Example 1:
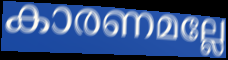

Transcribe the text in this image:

കാരണമല്ലേ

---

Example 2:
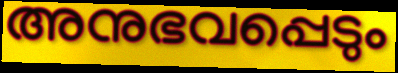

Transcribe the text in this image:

അനുഭവപ്പെടും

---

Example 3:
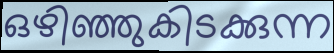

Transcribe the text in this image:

ഒഴിഞ്ഞുകിടക്കുന്ന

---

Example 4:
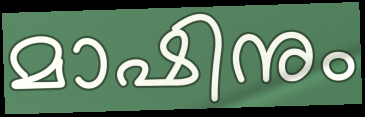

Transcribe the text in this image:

മാഷിനും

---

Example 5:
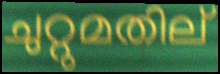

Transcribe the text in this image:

ചുറ്റുമതില്